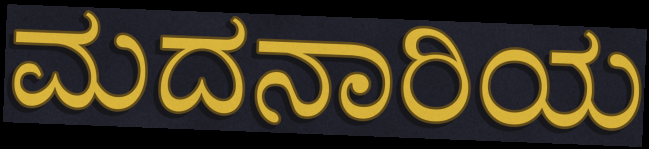
ಮದನಾರಿಯ